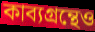
কাব্যগ্রন্থেও